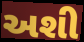
અશી